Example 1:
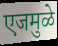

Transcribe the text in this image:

एजमुळे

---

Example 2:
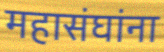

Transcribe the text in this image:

महासंघांना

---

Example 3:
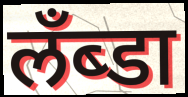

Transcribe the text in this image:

लँब्डा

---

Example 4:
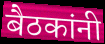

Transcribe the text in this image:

बैठकांनी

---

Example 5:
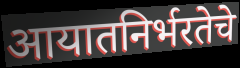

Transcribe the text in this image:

आयातनिर्भरतेचे